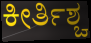
ಕೀರ್ತಿಶ್ಚ